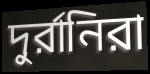
দুর্রানিরা